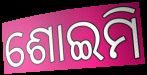
ଶୋଇମି